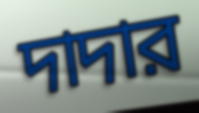
দাদার